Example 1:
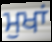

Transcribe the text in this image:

ਮੁਖਾਂ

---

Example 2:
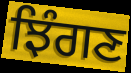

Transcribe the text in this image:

ਝਿੰਗਣ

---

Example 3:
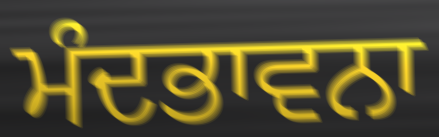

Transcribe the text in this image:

ਮੰਦਭਾਵਨਾ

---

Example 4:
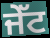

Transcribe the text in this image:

ਜੇੱਟ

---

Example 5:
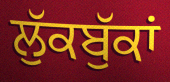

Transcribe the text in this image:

ਲੁੱਕਬੁੱਕਾਂ